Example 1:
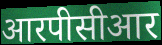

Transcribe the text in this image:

आरपीसीआर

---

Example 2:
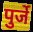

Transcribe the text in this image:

पुर्जे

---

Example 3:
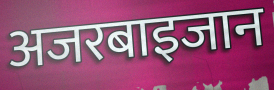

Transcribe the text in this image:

अजरबाइजान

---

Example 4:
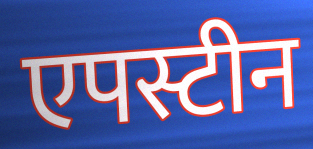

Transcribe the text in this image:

एपस्टीन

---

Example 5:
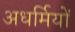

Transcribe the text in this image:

अधर्मियों